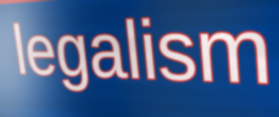
legalism